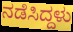
ನಡೆಸಿದ್ದಳು